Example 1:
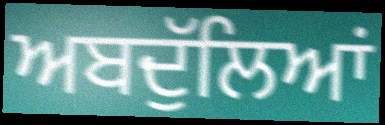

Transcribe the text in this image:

ਅਬਦੁੱਲਿਆਂ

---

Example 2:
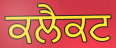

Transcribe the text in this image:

ਕਲੈਕਟ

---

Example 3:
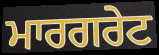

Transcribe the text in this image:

ਮਾਰਗਰੇਟ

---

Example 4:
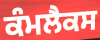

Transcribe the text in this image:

ਕੰਮਲੈਕਸ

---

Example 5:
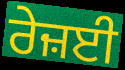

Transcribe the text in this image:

ਰੇਜ਼ਈ